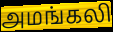
அமங்கலி